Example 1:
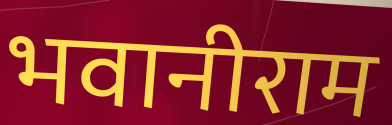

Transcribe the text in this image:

भवानीराम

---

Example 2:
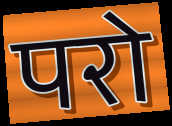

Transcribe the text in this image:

परो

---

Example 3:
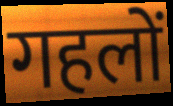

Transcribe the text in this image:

गहलों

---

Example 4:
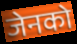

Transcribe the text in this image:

जेनको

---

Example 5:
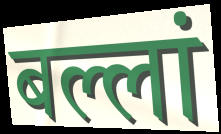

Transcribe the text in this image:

बल्लां